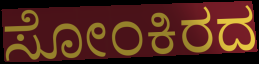
ಸೋಂಕಿರದ